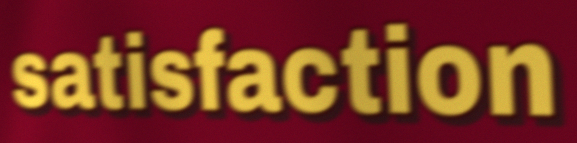
satisfaction